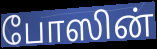
போஸின்